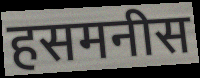
हसमनीस